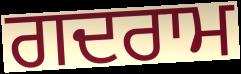
ਗਦਰਾਮ